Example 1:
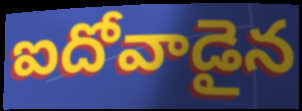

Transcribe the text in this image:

ఐదోవాడైన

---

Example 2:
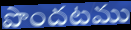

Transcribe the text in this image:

పొందటము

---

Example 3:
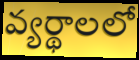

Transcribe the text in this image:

వ్యర్థాలలో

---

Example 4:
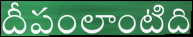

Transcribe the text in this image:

దీపంలాంటిది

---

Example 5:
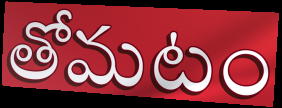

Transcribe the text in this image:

తోమటం